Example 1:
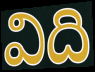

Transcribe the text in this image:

విది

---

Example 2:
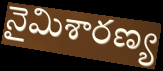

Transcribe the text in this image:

నైమిశారణ్య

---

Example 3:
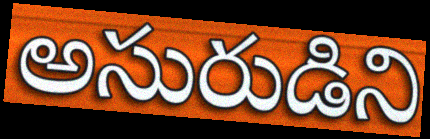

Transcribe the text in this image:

అసురుడిని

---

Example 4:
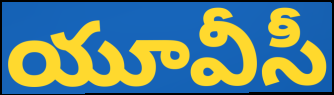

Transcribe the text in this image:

యూవీసీ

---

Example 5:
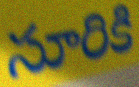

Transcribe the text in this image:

సూరికి